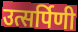
उत्सर्पिणी